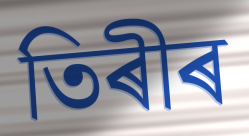
তিৰীৰ